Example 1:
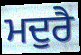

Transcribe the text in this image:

ਮਦੁਰੈ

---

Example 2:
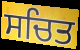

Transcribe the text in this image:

ਸਚਿਤ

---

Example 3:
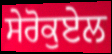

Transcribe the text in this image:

ਸੇਰੋਕੁਏਲ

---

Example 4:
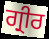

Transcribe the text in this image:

ਗ੍ਰੀਰ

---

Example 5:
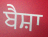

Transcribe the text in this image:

ਬੈਸ਼ਾ